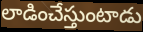
లాడించేస్తుంటాడు